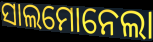
ସାଲମୋନେଲା